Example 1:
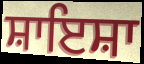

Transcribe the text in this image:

ਸ਼ਾਇਸ਼ਾ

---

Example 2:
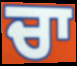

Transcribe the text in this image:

ਚਾ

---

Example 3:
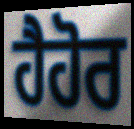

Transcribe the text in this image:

ਹੈਹੋਰ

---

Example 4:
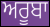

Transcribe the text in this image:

ਅਰੂਬਾ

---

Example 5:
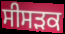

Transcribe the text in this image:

ਸੀਸੜਕ